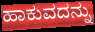
ಹಾಕುವದನ್ನು